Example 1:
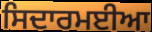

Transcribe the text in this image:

ਸਿਦਾਰਮਈਆ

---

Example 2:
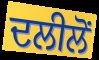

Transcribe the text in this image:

ਦਲੀਲੋਂ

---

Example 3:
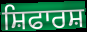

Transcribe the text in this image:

ਸ਼ਿਫਾਰਸ਼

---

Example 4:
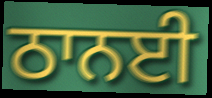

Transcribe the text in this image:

ਠਾਨਈ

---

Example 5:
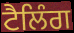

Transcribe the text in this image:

ਟੈਲਿੰਗ